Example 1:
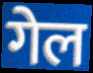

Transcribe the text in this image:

गेल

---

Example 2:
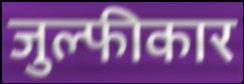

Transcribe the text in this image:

जुल्फीकार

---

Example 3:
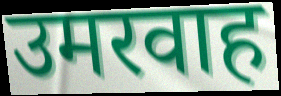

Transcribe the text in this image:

उमरवाह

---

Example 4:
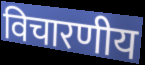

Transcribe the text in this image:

विचारणीय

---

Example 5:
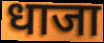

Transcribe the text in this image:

धाजा